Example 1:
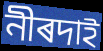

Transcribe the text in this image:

নীৰদাই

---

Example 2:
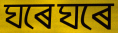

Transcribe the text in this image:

ঘৰেঘৰে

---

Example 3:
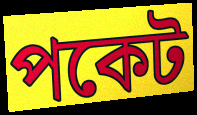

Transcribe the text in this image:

পকেট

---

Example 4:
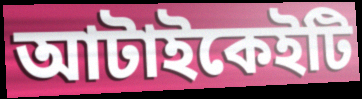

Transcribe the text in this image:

আটাইকেইটি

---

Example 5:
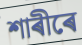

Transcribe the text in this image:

শাৰীৰে